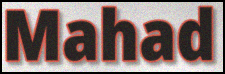
Mahad